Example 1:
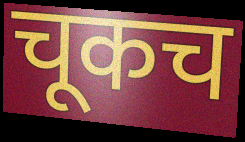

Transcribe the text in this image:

चूकच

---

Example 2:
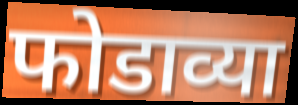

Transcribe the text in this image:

फोडाव्या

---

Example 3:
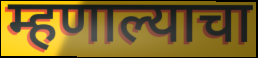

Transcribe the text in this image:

म्हणाल्याचा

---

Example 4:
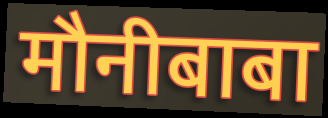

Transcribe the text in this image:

मौनीबाबा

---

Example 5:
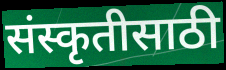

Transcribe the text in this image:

संस्कृतीसाठी